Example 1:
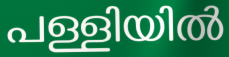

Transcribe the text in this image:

പള്ളിയിൽ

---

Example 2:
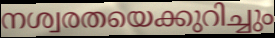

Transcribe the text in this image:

നശ്വരതയെക്കുറിച്ചും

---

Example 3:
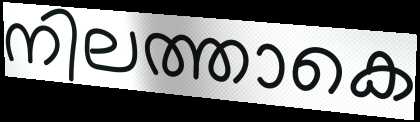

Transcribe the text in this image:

നിലത്താകെ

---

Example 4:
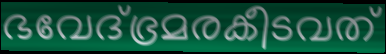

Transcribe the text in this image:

ഭവേദ്ഭ്രമരകീടവത്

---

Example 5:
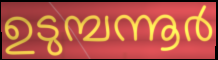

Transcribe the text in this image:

ഉടുമ്പന്നൂർ